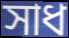
সাধ